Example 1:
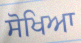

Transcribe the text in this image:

ਸੋਖਿਆ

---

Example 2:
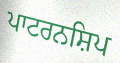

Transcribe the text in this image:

ਪਾਟਰਨਸ਼ਿਪ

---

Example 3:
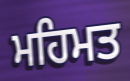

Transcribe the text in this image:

ਮਹਿਮਤ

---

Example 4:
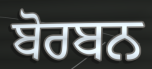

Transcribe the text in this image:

ਬੋਰਬਨ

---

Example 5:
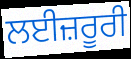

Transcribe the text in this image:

ਲਈਜ਼ਰੂਰੀ